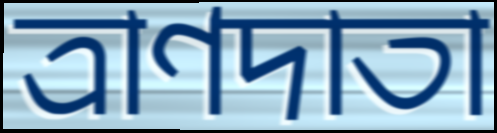
ত্রাণদাতা